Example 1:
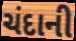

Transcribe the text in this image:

ચંદાની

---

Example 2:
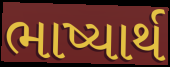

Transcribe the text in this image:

ભાષ્યાર્થ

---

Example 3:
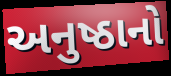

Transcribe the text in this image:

અનુષ્ઠાનો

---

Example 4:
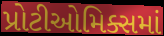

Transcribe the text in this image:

પ્રોટીઓમિક્સમાં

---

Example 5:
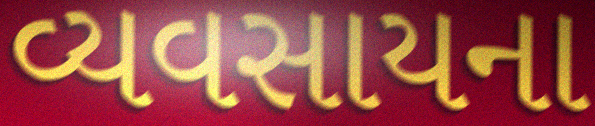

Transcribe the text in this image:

વ્યવસાયના